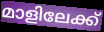
മാളിലേക്ക്